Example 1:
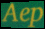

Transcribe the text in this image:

Aep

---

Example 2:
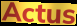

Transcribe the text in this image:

Actus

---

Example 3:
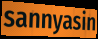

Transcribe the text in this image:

sannyasin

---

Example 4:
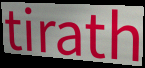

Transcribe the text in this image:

tirath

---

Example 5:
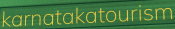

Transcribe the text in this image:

karnatakatourism